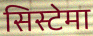
सिस्टेमा